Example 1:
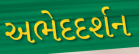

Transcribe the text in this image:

અભેદદર્શન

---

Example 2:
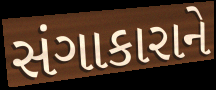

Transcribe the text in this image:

સંગાકારાને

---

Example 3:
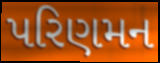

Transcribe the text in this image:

પરિણમન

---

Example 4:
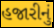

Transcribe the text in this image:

હજારીનું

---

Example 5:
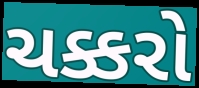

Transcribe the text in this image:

ચક્કરો